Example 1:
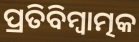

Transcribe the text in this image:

ପ୍ରତିବିମ୍ବାତ୍ମକ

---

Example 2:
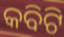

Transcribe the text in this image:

କବିଟି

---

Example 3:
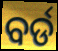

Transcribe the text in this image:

ବର୍ଡ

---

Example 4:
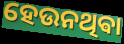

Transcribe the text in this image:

ହେଉନଥିଵା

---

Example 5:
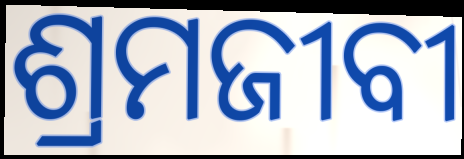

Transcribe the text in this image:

ଶ୍ରମଜୀବୀ